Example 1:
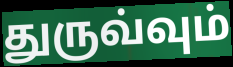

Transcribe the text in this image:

துருவ்வும்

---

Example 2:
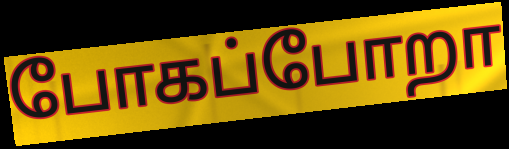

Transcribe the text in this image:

போகப்போறா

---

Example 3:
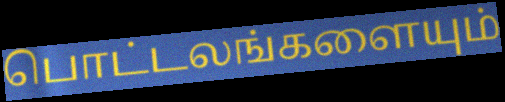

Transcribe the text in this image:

பொட்டலங்களையும்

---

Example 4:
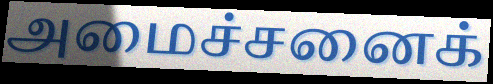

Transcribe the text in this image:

அமைச்சனைக்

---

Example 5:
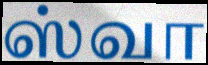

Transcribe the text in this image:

ஸ்வா